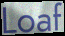
Loaf